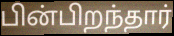
பின்பிறந்தார்